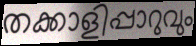
തക്കാളിപ്പാറുവും